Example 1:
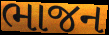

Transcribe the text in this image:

ભાજન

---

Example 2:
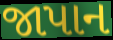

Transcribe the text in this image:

જાપાન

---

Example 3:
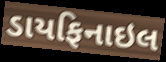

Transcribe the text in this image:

ડાયફિનાઇલ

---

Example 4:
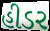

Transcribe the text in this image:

હીડર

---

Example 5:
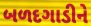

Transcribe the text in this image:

બળદગાડીને